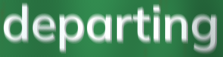
departing